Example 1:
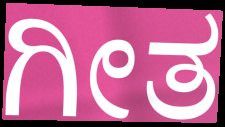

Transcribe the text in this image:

ಗೀತ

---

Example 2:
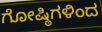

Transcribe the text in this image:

ಗೋಷ್ಠಿಗಳಿಂದ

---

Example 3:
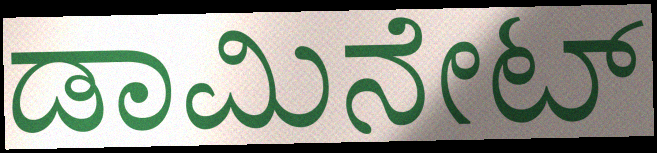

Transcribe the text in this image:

ಡಾಮಿನೇಟ್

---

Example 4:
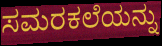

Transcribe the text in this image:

ಸಮರಕಲೆಯನ್ನು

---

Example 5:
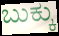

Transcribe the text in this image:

ಬುಕ್ಕು